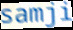
samji